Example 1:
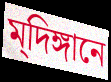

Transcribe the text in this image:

ম্‌দিঙ্গানে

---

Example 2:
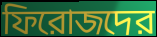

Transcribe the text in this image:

ফিরোজদের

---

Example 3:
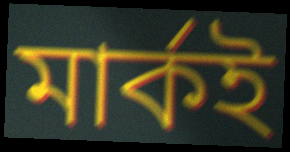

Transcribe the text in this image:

মার্কই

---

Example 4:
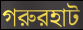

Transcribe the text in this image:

গরুরহাট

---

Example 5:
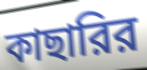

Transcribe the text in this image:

কাছারির